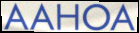
AAHOA